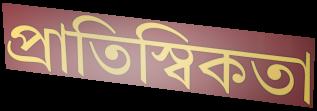
প্রাতিস্বিকতা